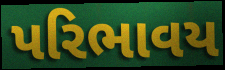
પરિભાવય